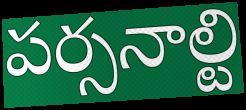
పర్సనాల్టి